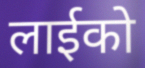
लाईको